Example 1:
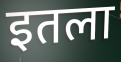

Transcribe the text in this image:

इतला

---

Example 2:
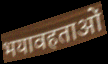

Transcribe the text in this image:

भयावहताओं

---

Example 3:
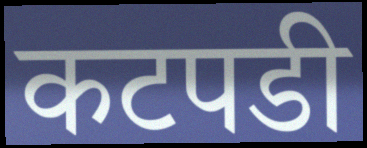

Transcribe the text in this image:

कटपडी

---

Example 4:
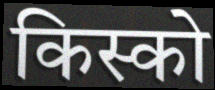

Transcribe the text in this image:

किस्को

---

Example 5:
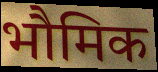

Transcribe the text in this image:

भौमिक